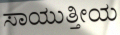
ಸಾಯುತ್ತೀಯ